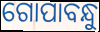
ଗୋପାବନ୍ଧୁ